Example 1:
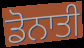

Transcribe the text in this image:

ਡੋਨਾਤੀ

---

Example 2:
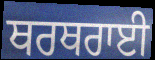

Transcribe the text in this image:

ਥਰਥਰਾਈ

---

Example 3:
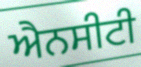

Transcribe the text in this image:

ਐਨਸੀਟੀ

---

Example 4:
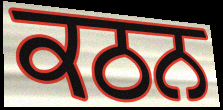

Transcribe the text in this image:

ਕਠਨ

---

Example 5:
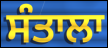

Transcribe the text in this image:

ਸੰਤਾਲਾ